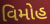
વિમોહ